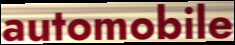
automobile